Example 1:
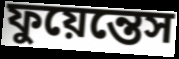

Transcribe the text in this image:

ফুয়েন্তেস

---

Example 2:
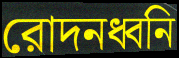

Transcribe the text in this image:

রোদনধ্বনি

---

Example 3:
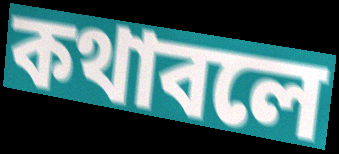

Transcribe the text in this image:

কথাবলে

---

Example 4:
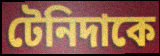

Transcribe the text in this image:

টেনিদাকে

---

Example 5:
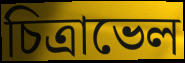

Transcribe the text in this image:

চিত্রাভেল